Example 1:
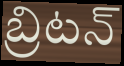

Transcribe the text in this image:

బ్రిటన్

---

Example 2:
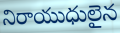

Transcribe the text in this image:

నిరాయుధులైన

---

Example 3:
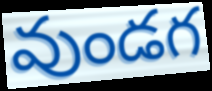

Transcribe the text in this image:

వుండగ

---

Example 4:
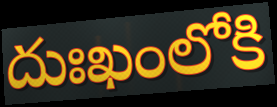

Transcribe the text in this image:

దుఃఖంలోకి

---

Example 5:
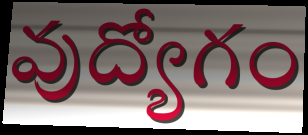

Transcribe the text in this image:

వుద్యోగం